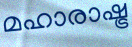
മഹാരാഷ്ട്ര